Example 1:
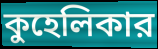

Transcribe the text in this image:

কুহেলিকার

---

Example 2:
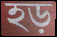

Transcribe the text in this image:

হড়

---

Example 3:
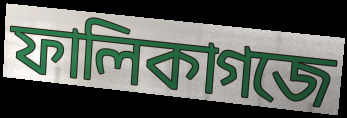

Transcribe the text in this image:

ফালিকাগজে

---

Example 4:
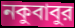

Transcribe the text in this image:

নকুবাবুর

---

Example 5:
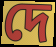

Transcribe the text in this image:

দে